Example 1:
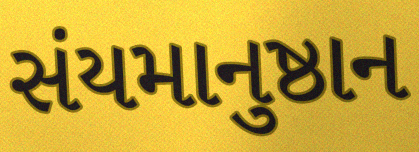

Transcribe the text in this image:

સંયમાનુષ્ઠાન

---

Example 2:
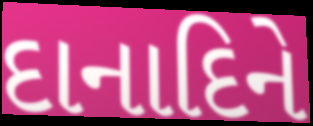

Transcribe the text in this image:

દાનાદિને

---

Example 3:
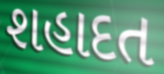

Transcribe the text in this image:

શહાદત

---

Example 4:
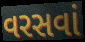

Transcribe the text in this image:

વરસવાં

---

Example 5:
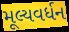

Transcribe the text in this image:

મૂલ્યવર્ધન